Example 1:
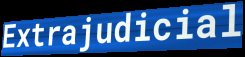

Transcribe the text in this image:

Extrajudicial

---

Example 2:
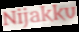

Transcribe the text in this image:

Nijakku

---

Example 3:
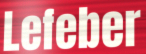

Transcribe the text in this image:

Lefeber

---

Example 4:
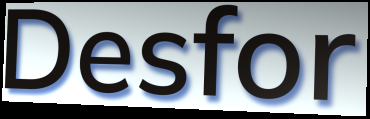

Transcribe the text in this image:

Desfor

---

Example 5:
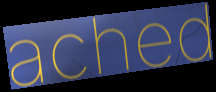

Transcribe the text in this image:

ached